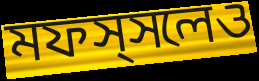
মফস্‌সলেও